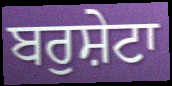
ਬਰੁਸ਼ੇਟਾ